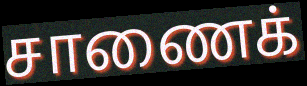
சாணைக்